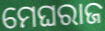
ମେଘରାଜ